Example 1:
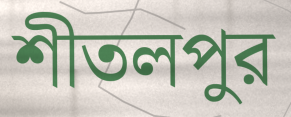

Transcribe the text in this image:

শীতলপুর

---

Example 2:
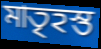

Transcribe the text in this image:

মাতৃহস্ত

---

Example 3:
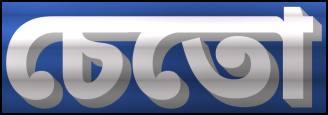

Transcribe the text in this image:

চেতো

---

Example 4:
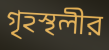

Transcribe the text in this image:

গৃহস্থলীর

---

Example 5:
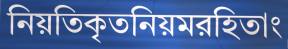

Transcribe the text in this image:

নিয়তিকৃতনিয়মরহিতাং